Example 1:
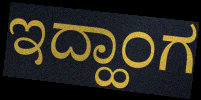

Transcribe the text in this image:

ಇದ್ಹಾಂಗ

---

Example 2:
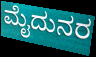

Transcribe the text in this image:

ಮೈದುನರ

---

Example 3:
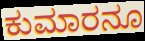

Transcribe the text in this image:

ಕುಮಾರನೂ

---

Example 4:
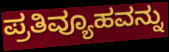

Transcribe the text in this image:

ಪ್ರತಿವ್ಯೂಹವನ್ನು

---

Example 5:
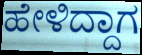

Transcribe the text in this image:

ಹೇಳಿದ್ದಾಗ